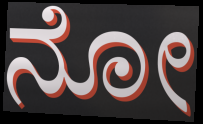
ನೋ